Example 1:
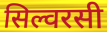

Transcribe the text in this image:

सिल्वरसी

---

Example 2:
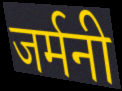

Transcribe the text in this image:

जर्मनी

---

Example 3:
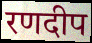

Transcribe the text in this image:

रणदीप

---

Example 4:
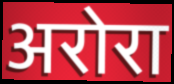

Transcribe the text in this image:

अरोरा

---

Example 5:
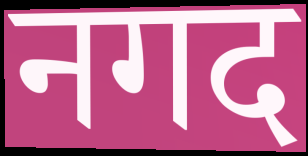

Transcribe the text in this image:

नगद